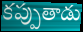
కప్పుతాడు